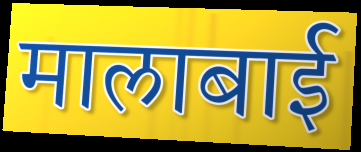
मालाबाई